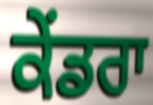
ਕੇਂਡਰਾ